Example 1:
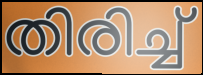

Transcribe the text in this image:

തിരിച്ച്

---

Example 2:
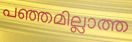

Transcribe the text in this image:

പഞ്ഞമില്ലാത്ത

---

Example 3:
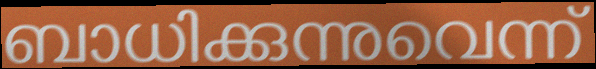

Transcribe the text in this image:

ബാധിക്കുന്നുവെന്ന്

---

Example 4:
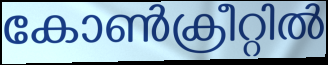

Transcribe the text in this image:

കോൺക്രീറ്റിൽ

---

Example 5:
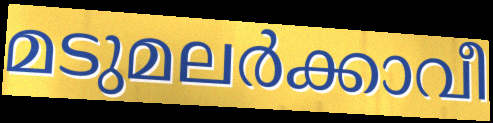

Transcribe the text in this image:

മടുമലർക്കാവീ